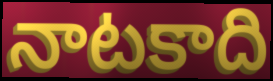
నాటకాది